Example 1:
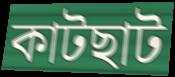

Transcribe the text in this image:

কাটছাট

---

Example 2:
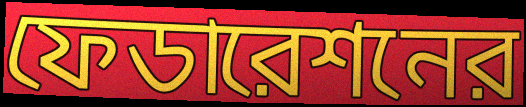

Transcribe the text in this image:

ফেডারেশনের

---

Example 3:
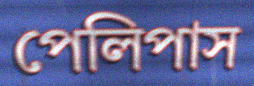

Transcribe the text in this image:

পেলিপাস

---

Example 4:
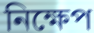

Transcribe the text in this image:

নিক্ষেপ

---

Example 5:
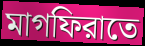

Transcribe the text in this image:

মাগফিরাতে